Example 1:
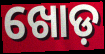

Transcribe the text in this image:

ଖୋଡ଼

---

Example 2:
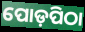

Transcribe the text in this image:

ପୋଡ଼ପିଠା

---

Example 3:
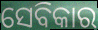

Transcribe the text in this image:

ସେବିକାର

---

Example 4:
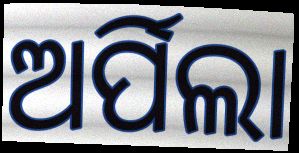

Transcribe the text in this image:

ଅର୍ପିଲା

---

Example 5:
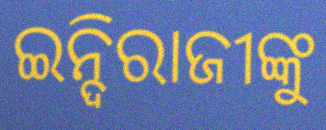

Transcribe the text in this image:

ଇନ୍ଦିରାଜୀଙ୍କୁ